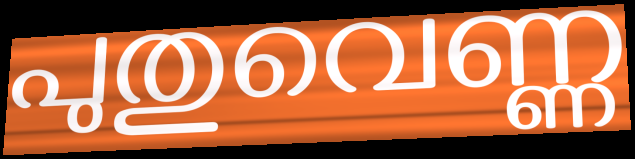
പുതുവെണ്ണ